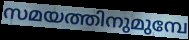
സമയത്തിനുമുമ്പേ